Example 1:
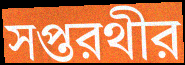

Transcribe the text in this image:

সপ্তরথীর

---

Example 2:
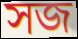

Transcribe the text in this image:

সজ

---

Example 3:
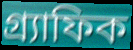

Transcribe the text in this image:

গ্র্যাফিক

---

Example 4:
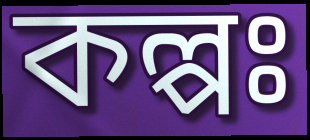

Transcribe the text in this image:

কল্পঃ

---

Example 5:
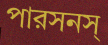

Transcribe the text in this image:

পারসনস্